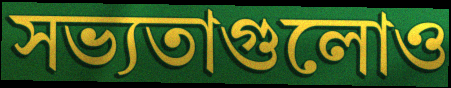
সভ্যতাগুলোও